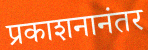
प्रकाशनानंतर